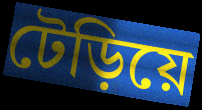
টেড়িয়ে